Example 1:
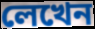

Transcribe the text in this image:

লেখেন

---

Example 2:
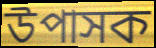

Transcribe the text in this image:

উপাসক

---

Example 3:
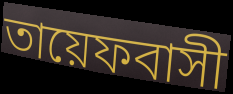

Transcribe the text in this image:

তায়েফবাসী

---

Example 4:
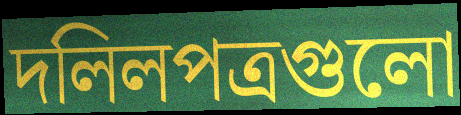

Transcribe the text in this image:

দলিলপত্রগুলো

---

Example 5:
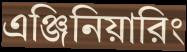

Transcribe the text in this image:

এঞ্জিনিয়ারিং